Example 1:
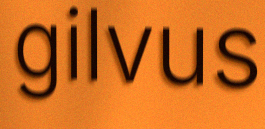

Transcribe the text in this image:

gilvus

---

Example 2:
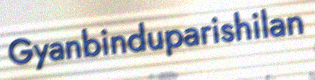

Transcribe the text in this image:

Gyanbinduparishilan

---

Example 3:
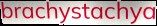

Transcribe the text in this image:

brachystachya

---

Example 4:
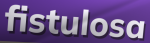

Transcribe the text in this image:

fistulosa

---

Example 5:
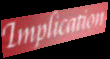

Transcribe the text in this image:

Implication